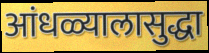
आंधळ्यालासुद्धा